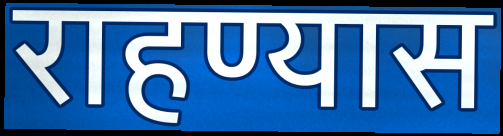
राहण्यास